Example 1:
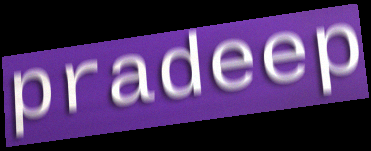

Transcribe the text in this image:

pradeep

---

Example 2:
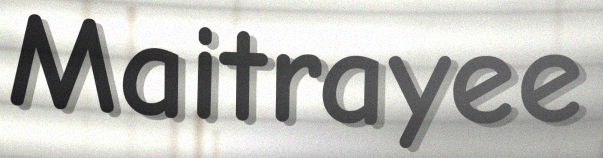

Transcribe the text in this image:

Maitrayee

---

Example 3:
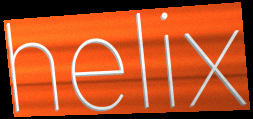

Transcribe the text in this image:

helix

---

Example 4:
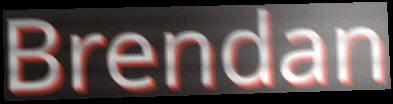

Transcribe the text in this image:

Brendan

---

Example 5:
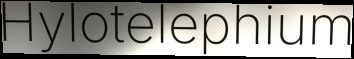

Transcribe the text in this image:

Hylotelephium